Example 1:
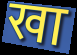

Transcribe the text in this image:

खा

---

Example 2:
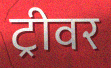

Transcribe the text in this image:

ट्रीवर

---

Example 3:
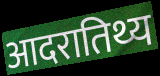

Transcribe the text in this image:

आदरातिथ्य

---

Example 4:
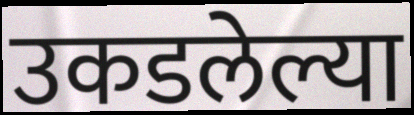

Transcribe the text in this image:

उकडलेल्या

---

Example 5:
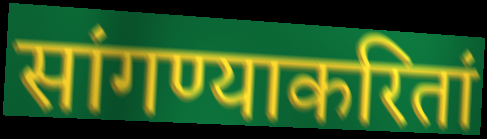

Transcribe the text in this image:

सांगण्याकरितां